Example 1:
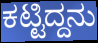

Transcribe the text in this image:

ಕಟ್ಟಿದ್ದನು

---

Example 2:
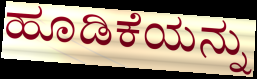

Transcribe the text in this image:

ಹೂಡಿಕೆಯನ್ನು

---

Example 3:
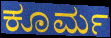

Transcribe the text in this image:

ಕೂರ್ಮ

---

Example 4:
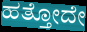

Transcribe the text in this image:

ಹತ್ತೋದೇ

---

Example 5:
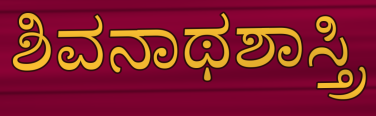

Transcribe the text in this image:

ಶಿವನಾಥಶಾಸ್ತ್ರಿ